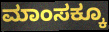
ಮಾಂಸಕ್ಕೂ